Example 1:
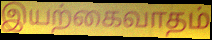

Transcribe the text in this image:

இயற்கைவாதம்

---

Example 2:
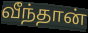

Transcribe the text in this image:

வீந்தான்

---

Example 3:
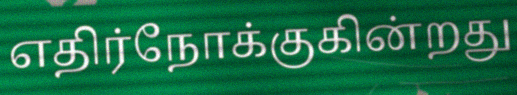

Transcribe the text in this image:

எதிர்நோக்குகின்றது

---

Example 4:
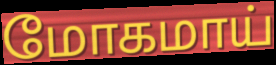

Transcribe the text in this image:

மோகமாய்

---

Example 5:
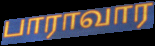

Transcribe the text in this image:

பாராவார